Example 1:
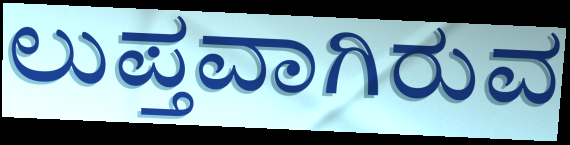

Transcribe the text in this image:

ಲುಪ್ತವಾಗಿರುವ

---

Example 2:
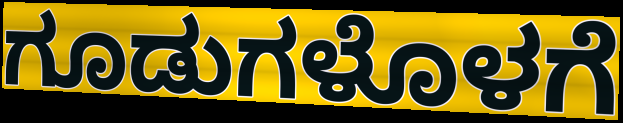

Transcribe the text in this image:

ಗೂಡುಗಳೊಳಗೆ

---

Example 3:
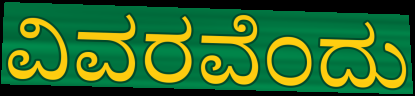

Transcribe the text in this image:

ವಿವರವೆಂದು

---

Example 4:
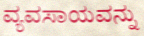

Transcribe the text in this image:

ವ್ಯವಸಾಯವನ್ನು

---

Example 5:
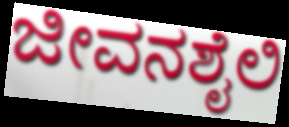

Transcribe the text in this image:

ಜೀವನಶೈಲಿ